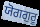
ਯੋਗਗੁਰੂ